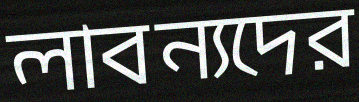
লাবন্যদের